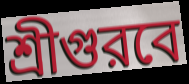
শ্রীগুরবে